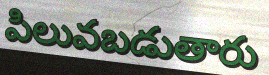
పిలువబడుతారు